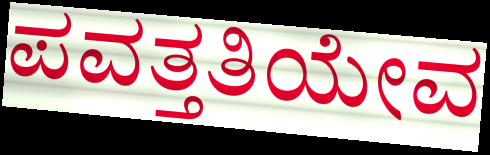
ಪವತ್ತತಿಯೇವ